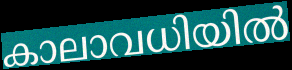
കാലാവധിയിൽ